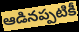
ఆడినప్పటికీ